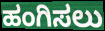
ಹಂಗಿಸಲು